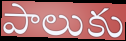
పాలుకు